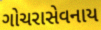
ગોચરાસેવનાય